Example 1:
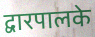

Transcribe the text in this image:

द्वारपालके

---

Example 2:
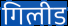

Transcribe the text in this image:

गिलीड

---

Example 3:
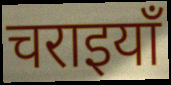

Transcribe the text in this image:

चराइयाँ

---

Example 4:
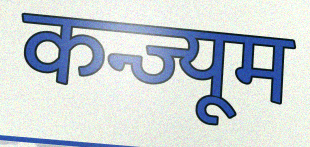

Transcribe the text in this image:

कन्ज्यूम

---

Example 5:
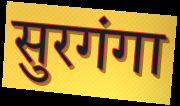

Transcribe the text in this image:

सुरगंगा